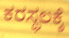
ಕರಸ್ಥಲಕ್ಕೆ